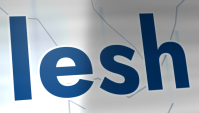
lesh